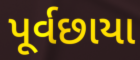
પૂર્વછાયા